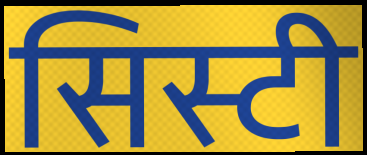
सिस्टी